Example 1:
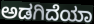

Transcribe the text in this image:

ಅಡಗಿದೆಯಾ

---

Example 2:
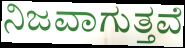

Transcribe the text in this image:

ನಿಜವಾಗುತ್ತವೆ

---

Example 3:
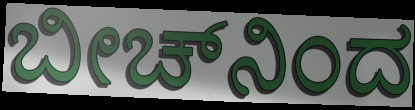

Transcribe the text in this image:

ಬೀಚ್‌ನಿಂದ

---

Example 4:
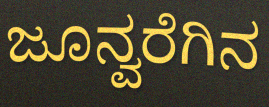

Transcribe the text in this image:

ಜೂನ್ವರೆಗಿನ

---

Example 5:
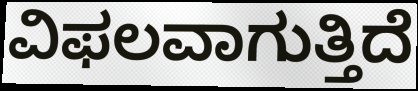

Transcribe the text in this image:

ವಿಫಲವಾಗುತ್ತಿದೆ